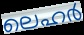
ലെഹർ